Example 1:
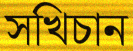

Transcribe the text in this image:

সখিচান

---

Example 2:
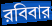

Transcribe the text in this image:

রবিবার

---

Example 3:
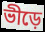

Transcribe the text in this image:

ভীড়ে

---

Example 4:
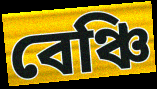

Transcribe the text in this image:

বেঞ্চি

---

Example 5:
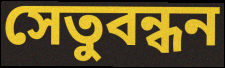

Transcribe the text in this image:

সেতুবন্ধন